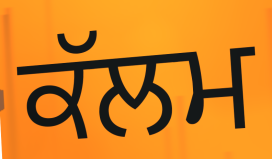
ਕੱਲਮ